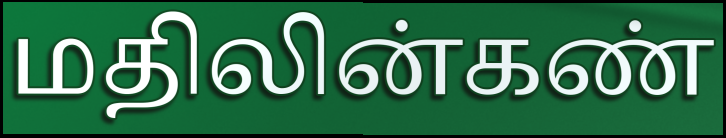
மதிலின்கண்